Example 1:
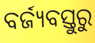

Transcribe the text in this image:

ବର୍ଜ୍ୟବସ୍ତୁରୁ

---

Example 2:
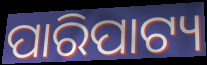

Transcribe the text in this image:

ପାରିପାଟ୍ୟ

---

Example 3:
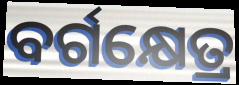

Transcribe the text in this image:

ବର୍ଗକ୍ଷେତ୍ର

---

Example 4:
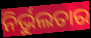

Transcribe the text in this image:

ନିର୍ଭୁଲତାର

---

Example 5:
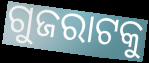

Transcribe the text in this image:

ଗୁଜରାଟକୁ